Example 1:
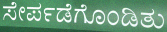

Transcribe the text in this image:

ಸೇರ್ಪಡೆಗೊಂಡಿತು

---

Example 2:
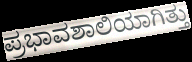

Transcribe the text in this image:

ಪ್ರಭಾವಶಾಲಿಯಾಗಿತ್ತು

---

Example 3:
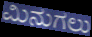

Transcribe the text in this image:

ಮಿನುಗಲು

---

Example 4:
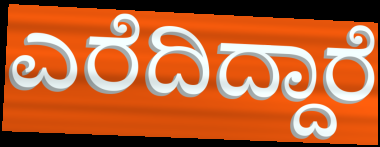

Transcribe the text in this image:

ಎರೆದಿದ್ದಾರೆ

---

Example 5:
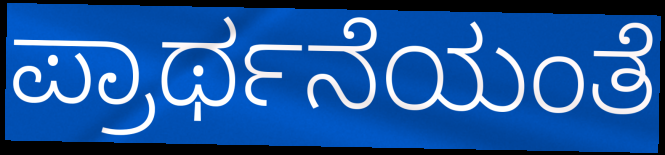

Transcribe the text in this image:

ಪ್ರಾರ್ಥನೆಯಂತೆ